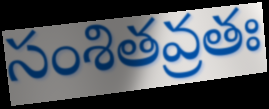
సంశితవ్రతః